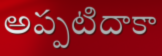
అప్పటిదాకా